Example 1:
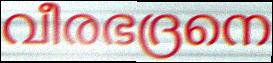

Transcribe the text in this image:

വീരഭദ്രനെ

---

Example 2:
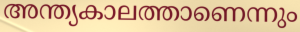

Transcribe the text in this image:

അന്ത്യകാലത്താണെന്നും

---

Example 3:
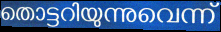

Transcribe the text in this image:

തൊട്ടറിയുന്നുവെന്ന്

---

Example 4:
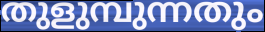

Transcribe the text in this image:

തുളുമ്പുന്നതും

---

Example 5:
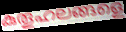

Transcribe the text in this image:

കുതൂഹലങ്ങളെ